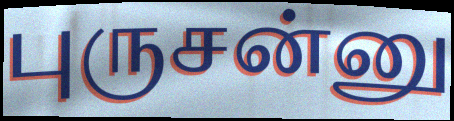
புருசன்னு